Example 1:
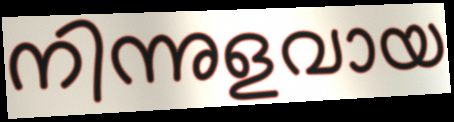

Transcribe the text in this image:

നിന്നുളവായ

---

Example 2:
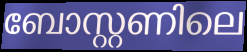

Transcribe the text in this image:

ബോസ്റ്റണിലെ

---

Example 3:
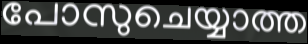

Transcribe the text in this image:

പോസുചെയ്യാത്ത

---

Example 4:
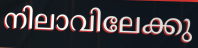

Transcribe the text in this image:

നിലാവിലേക്കു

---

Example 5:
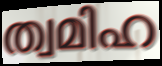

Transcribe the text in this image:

ത്വമിഹ